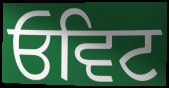
ਓਵਿਟ